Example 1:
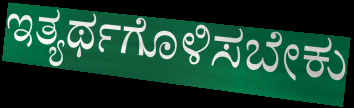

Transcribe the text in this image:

ಇತ್ಯರ್ಥಗೊಳಿಸಬೇಕು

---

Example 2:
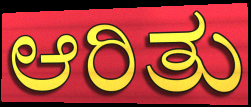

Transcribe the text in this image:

ಆರಿತು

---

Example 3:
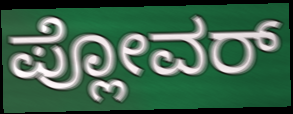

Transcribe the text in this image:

ಪ್ಲೋವರ್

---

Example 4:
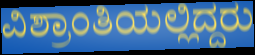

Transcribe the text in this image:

ವಿಶ್ರಾಂತಿಯಲ್ಲಿದ್ದರು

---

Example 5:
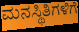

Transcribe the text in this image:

ಮನಸ್ಥಿತಿಗಳಿಗೆ